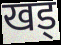
खड्